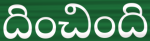
దించింది